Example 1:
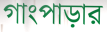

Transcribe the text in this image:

গাংপাড়ার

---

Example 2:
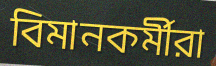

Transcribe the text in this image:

বিমানকর্মীরা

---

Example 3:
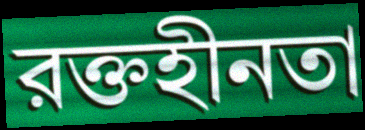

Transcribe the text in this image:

রক্তহীনতা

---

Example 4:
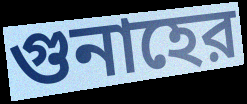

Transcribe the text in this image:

গুনাহের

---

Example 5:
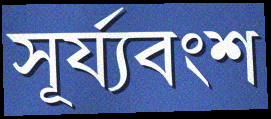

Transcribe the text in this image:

সূর্য্যবংশ